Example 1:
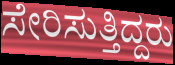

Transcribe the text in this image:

ಸೇರಿಸುತ್ತಿದ್ದರು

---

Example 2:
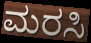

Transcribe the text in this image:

ಮರಸಿ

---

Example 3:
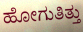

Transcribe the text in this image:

ಹೋಗುತಿತ್ತು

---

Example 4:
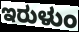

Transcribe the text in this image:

ಇರುಳುಂ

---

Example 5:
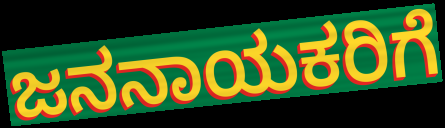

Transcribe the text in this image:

ಜನನಾಯಕರಿಗೆ